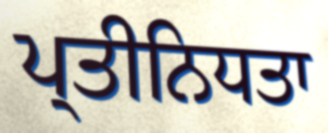
ਪ੍ਤੀਨਿਧਤਾ